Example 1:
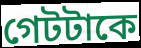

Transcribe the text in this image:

গেটটাকে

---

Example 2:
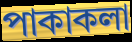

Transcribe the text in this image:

পাকাকলা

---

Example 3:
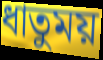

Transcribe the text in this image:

ধাতুময়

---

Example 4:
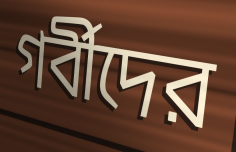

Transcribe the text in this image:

গর্বীদের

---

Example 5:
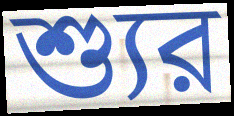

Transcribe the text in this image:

শ্যুর